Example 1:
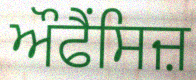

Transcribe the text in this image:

ਔਫੈਂਸਿਜ਼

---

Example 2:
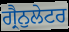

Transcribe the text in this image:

ਗ੍ਰੈਨੁਲੇਟਰ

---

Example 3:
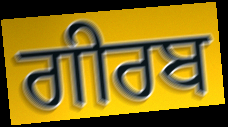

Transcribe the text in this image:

ਗੀਰਬ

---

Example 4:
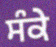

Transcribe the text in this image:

ਸੰਕੇ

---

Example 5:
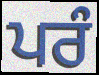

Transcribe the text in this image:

ਪਰੰ